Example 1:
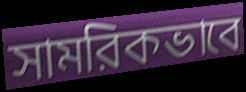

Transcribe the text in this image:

সামরিকভাবে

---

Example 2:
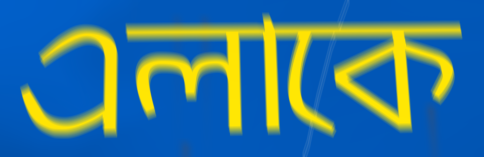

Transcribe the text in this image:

এলাকে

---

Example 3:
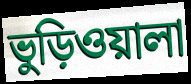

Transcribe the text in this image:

ভুড়িওয়ালা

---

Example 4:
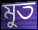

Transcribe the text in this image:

মুত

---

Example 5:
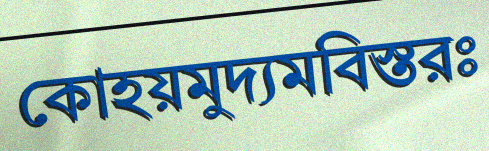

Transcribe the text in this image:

কোহয়মুদ্যমবিস্তরঃ